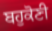
ਬਹੁਕੋਣੀ